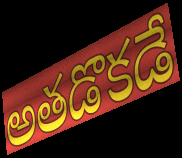
అతడొకడే